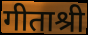
गीताश्री